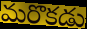
మరొకడు